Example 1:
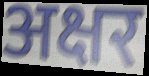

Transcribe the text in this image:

अक्षर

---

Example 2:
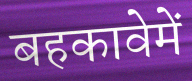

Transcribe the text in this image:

बहकावेमें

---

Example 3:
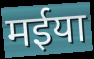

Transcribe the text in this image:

मईया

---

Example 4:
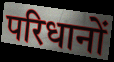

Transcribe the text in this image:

परिधानों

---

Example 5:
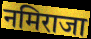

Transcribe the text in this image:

नमिराजा